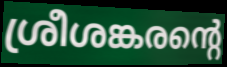
ശ്രീശങ്കരന്റെ